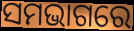
ସମଭାଗରେ